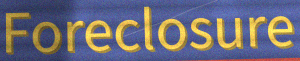
Foreclosure